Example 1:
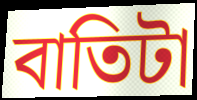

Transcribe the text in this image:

বাতিটা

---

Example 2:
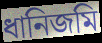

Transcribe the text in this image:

ধানিজমি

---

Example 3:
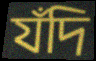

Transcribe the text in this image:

যঁদি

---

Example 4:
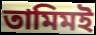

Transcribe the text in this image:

তামিমই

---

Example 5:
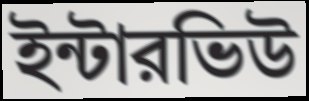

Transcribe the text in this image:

ইন্টারভিউ